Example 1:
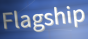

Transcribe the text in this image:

Flagship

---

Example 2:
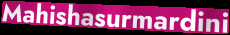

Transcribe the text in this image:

Mahishasurmardini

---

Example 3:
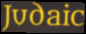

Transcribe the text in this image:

Judaic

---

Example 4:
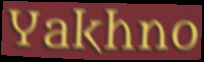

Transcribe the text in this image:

Yakhno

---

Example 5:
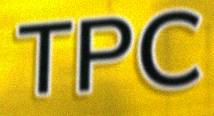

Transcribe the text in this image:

TPC